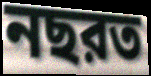
নছরত